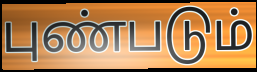
புண்படும்